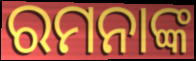
ରମନାଙ୍କ